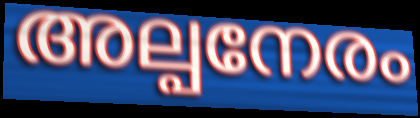
അല്പനേരം